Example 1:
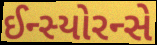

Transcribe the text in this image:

ઈન્સ્યોરન્સે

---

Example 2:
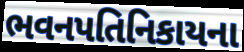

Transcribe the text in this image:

ભવનપતિનિકાયના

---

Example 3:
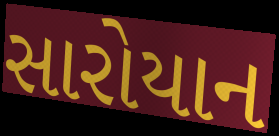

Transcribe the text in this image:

સારોયાન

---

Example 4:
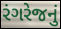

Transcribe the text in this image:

રંગરેજનું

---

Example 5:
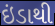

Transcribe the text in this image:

ઇંડાથી